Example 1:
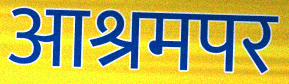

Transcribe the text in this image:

आश्रमपर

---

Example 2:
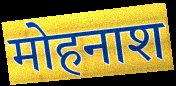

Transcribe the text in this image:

मोहनाश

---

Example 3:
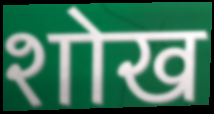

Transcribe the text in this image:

शोख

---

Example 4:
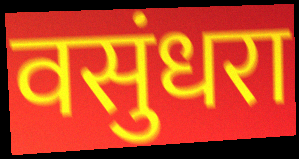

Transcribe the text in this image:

वसुंधरा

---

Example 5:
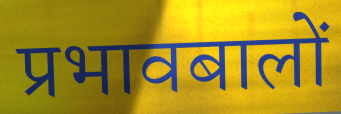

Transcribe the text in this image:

प्रभावबालों